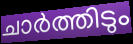
ചാർത്തിടും